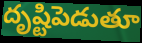
దృష్టిపెడుతూ